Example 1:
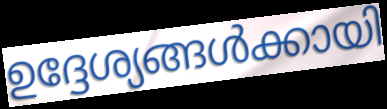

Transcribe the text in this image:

ഉദ്ദേശ്യങ്ങൾക്കായി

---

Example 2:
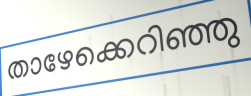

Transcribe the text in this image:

താഴേക്കെറിഞ്ഞു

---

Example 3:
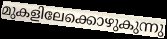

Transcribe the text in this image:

മുകളിലേക്കൊഴുകുന്നു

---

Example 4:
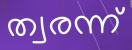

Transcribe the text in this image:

ത്വരന്ന്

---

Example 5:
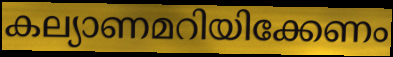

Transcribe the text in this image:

കല്യാണമറിയിക്കേണം